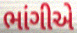
ભાંગીએ